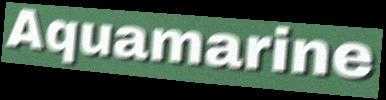
Aquamarine